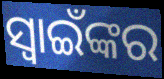
ସ୍ୱାଇଁଙ୍କର